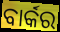
ବାର୍କର